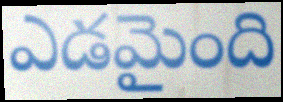
ఎడమైంది